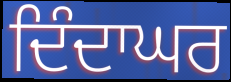
ਦਿੰਦਾਘਰ